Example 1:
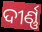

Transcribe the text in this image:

ଦୀର୍ଣ୍ଣ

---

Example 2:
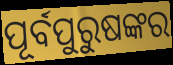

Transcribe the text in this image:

ପୂର୍ବପୁରୁଷଙ୍କର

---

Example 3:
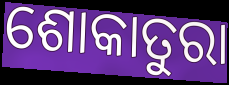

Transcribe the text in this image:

ଶୋକାତୁରା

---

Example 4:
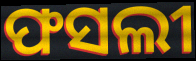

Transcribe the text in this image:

ଫସଲୀ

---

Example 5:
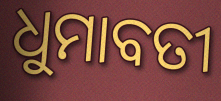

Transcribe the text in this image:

ଧୁମାବତୀ